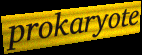
prokaryote